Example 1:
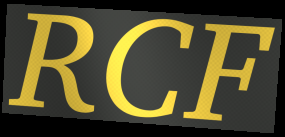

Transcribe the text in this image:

RCF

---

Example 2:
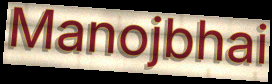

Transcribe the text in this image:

Manojbhai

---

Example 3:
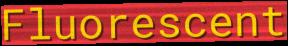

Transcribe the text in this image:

Fluorescent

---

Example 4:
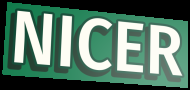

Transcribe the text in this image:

NICER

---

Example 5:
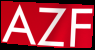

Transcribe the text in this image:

AZF